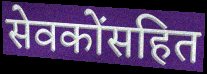
सेवकोंसहित